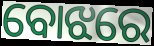
ବୋଝରେ